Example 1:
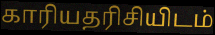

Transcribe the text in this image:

காரியதரிசியிடம்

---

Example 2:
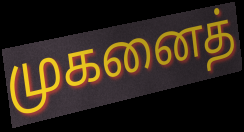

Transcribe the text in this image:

முகனைத்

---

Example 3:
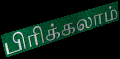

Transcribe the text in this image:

பிரிக்கலாம்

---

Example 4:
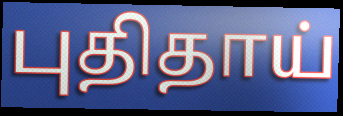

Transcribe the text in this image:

புதிதாய்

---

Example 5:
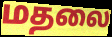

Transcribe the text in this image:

மதலை